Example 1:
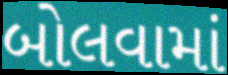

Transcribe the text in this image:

બોલવામાં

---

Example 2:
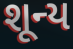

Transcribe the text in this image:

શૂન્ય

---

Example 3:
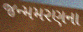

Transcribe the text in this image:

જન્મમરણના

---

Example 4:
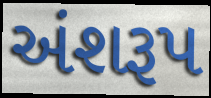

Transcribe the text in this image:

અંશરૂપ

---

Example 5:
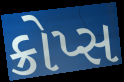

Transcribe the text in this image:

ક્રોપ્સ